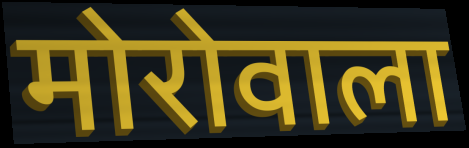
मोरोवाला